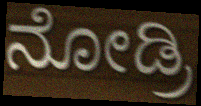
ನೋಡ್ರಿ